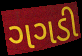
ગગડી